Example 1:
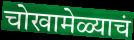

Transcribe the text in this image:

चोखामेळ्याचं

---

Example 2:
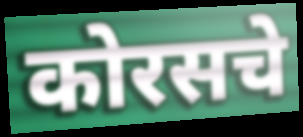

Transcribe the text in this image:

कोरसचे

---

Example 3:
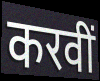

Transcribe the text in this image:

करवीं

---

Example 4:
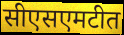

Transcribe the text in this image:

सीएसएमटीत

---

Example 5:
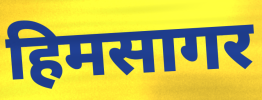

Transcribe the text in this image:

हिमसागर